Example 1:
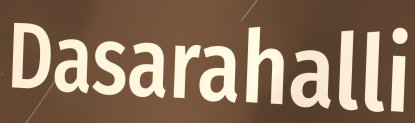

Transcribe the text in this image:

Dasarahalli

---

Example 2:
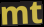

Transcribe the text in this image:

mt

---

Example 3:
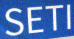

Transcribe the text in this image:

SETI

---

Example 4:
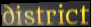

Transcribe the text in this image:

district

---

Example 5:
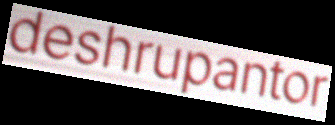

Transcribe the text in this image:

deshrupantor